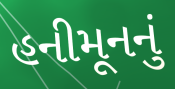
હનીમૂનનું